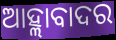
ଆହ୍ଲାବାଦର